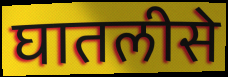
घातलीसे